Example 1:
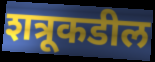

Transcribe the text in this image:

शत्रूकडील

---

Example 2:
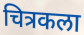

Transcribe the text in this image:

चित्रकला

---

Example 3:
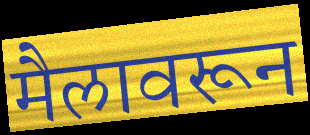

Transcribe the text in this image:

मैलावरून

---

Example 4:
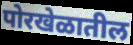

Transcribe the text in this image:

पोरखेळातील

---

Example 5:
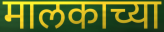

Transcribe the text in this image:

मालकाच्या